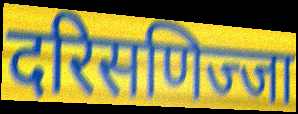
दरिसणिज्जा